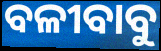
ବଳୀବାବୁ